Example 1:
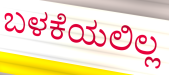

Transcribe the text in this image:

ಬಳಕೆಯಲಿಲ್ಲ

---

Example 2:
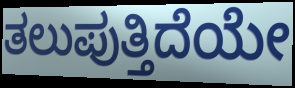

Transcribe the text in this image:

ತಲುಪುತ್ತಿದೆಯೇ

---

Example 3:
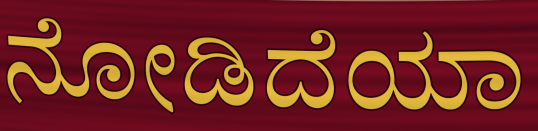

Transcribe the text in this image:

ನೋಡಿದೆಯಾ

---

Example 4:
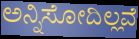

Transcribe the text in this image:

ಅನ್ನಿಸೋದಿಲ್ಲವೆ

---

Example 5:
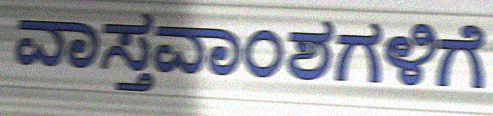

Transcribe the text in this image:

ವಾಸ್ತವಾಂಶಗಳಿಗೆ